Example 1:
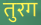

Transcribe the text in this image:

तुरग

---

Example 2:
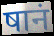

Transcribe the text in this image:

षानं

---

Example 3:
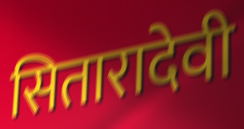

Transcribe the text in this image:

सितारादेवी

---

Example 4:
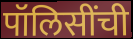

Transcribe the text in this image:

पॉलिसींची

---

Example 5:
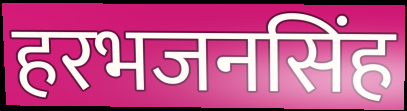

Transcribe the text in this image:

हरभजनसिंह